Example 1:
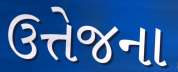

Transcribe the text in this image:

ઉત્તેજના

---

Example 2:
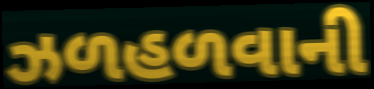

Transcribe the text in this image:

ઝળહળવાની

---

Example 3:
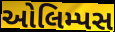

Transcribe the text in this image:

ઓલિમ્પસ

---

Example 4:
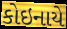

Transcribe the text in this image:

કોઇનાયે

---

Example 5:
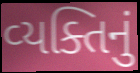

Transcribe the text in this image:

વ્‍યક્તિનું